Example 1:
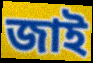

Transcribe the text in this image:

জাই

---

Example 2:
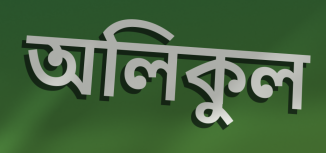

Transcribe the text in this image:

অলিকুল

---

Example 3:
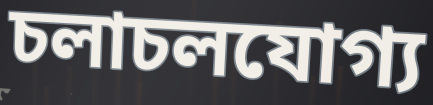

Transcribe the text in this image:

চলাচলযোগ্য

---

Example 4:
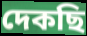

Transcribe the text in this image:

দেকছি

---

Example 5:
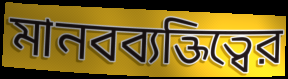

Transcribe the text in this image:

মানবব্যক্তিত্বের